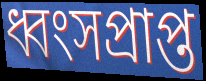
ধ্বংসপ্ৰাপ্ত